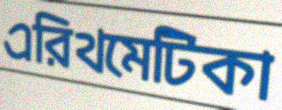
এরিথমেটিকা